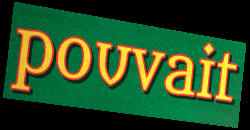
pouvait